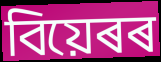
বিয়েৰৰ